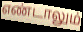
எண்டாலும்